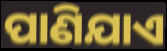
ପାଣିଯାଏ